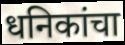
धनिकांचा